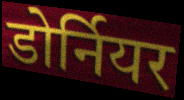
डोर्नियर